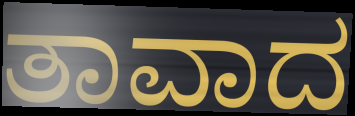
ತಾವಾದ